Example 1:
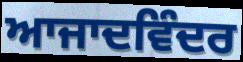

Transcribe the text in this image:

ਆਜਾਦਵਿੰਦਰ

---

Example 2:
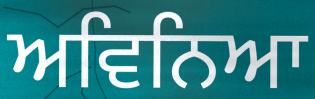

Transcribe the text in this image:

ਅਵਿਨਿਆ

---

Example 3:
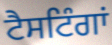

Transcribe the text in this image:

ਟੈਸਟਿੰਗਾਂ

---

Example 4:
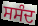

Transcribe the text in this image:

ਸਸੰਦ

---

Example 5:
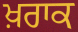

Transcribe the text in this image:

ਖ਼ਰਾਕ